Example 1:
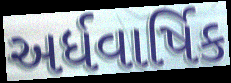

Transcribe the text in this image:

અર્ધવાર્ષિક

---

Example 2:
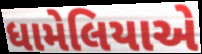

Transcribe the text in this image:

ધામેલિયાએ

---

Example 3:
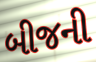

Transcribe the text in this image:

બીજની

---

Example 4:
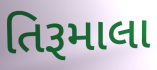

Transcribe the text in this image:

તિરૂમાલા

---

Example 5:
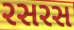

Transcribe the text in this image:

રસરસ